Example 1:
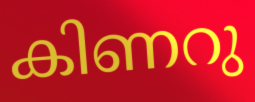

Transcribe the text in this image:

കിണറു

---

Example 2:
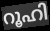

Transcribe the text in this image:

റൂഹി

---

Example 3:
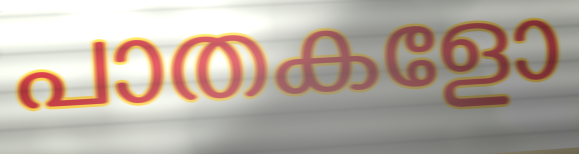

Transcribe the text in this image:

പാതകളോ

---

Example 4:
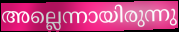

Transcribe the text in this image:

അല്ലെന്നായിരുന്നു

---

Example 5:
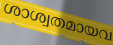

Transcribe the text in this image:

ശാശ്വതമായവ